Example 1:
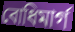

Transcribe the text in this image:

বোধিমার্গ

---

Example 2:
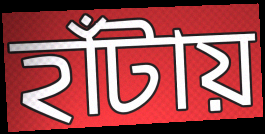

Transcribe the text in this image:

হাঁটায়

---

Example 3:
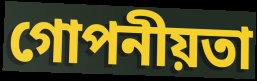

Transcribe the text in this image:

গোপনীয়তা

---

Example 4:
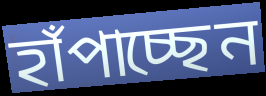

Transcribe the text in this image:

হাঁপাচ্ছেন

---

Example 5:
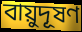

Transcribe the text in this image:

বায়ুদূষণ